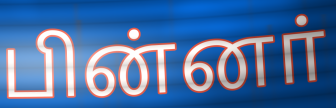
பின்னர்